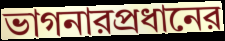
ভাগনারপ্রধানের